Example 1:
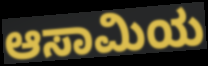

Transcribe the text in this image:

ಆಸಾಮಿಯ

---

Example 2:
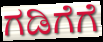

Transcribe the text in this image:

ಗಡಿಗೆಗೆ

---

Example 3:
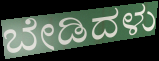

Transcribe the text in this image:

ಬೇಡಿದಳು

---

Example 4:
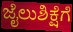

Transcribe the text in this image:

ಜೈಲುಶಿಕ್ಷೆಗೆ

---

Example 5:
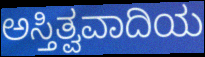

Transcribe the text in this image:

ಅಸ್ತಿತ್ವವಾದಿಯ